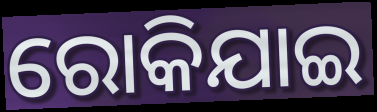
ରୋକିଯାଇ